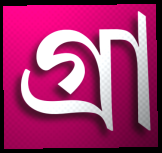
গ্রা